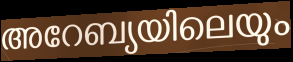
അറേബ്യയിലെയും